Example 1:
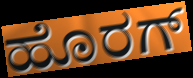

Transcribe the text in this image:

ಹೊರಗ್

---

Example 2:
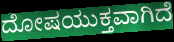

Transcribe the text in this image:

ದೋಷಯುಕ್ತವಾಗಿದೆ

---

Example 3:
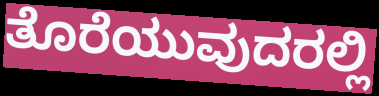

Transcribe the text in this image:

ತೊರೆಯುವುದರಲ್ಲಿ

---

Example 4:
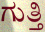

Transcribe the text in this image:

ಗುತ್ತಿ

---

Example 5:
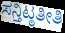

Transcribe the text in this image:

ಸನ್ತಿಟ್ಠತೀತಿ